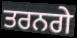
ਤਰਨਗੇ